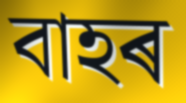
বাহৰ